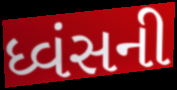
ધ્વંસની